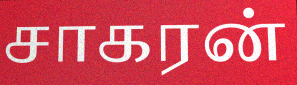
சாகரன்